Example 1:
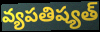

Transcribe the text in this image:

వ్యపతిష్యత్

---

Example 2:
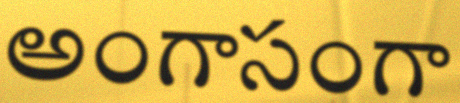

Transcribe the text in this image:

అంగాసంగా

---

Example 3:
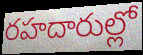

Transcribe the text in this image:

రహదారుల్లో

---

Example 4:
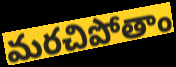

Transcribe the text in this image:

మరచిపోతాం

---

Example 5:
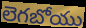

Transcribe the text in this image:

లెగబోయు